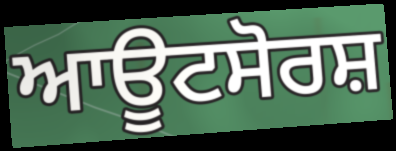
ਆਊਟਸੋਰਸ਼